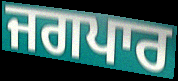
ਜਗਪਾਰ